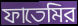
ফাতেমির